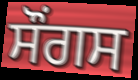
ਸੌਂਗਸ